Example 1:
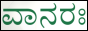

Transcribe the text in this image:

ವಾನರಃ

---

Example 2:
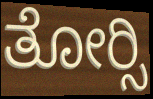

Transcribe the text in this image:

ತೋರ್‍ಸಿ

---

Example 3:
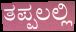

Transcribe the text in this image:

ತಪ್ಪಲಲ್ಲಿ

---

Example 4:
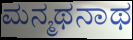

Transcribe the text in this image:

ಮನ್ಮಥನಾಥ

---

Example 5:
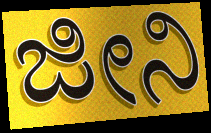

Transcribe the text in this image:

ಜೀನಿ